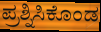
ಪ್ರಶ್ನಿಸಿಕೊಂಡ